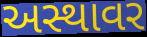
અસ્થાવર